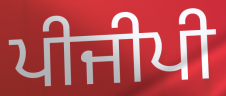
ਪੀਜੀਪੀ